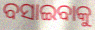
ବସାଇବାକୁ